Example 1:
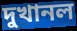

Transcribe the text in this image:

দুখানল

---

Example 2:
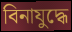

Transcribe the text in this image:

বিনাযুদ্ধে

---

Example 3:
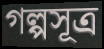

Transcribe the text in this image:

গল্পসূত্র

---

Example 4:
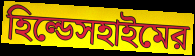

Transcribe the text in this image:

হিল্ডেসহাইমের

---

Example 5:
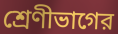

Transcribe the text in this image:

শ্রেণীভাগের